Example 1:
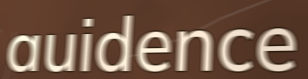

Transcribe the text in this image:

auidence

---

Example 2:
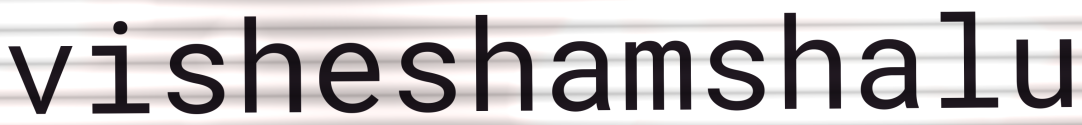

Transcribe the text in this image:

visheshamshalu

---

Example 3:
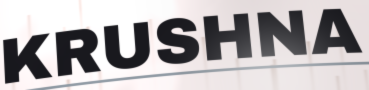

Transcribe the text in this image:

KRUSHNA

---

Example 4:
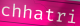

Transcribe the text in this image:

chhatri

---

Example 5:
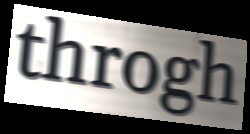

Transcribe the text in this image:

throgh